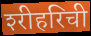
श्रीहरिची